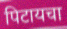
पिटायचा